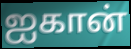
ஐகான்